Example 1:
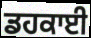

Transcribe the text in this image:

ਡਹਕਾਈ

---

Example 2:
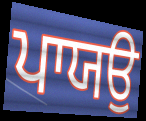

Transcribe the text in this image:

ਪਾਯਉ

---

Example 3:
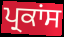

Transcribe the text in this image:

ਪ੍ਰਕਾਂਸ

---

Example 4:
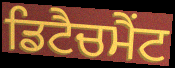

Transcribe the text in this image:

ਡਿਟੈਚਮੈਂਟ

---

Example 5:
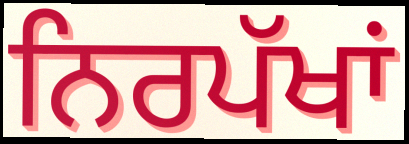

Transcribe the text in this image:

ਨਿਰਪੱਖਾਂ